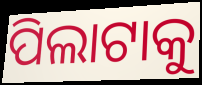
ପିଲାଟାକୁ